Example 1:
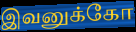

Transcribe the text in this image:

இவனுக்கோ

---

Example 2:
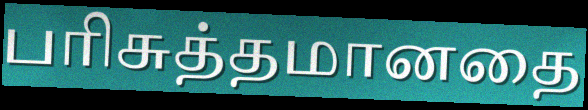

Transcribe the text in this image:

பரிசுத்தமானதை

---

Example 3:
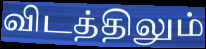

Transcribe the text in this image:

விடத்திலும்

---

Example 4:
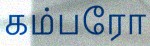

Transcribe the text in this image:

கம்பரோ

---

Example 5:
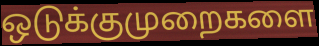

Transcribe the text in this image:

ஒடுக்குமுறைகளை